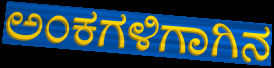
ಅಂಕಗಳಿಗಾಗಿನ